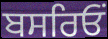
ਬਸਰਿਓਂ